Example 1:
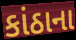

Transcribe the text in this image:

કાંઠાના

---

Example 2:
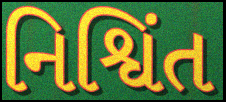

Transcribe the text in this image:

નિશ્વિંત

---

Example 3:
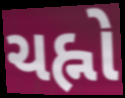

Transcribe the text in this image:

ચહ્નો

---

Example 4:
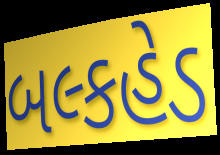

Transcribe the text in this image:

બલ્કહેડ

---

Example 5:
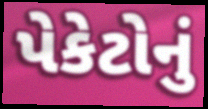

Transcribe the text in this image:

પેકેટોનું